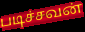
படிச்சவன்